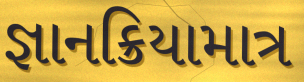
જ્ઞાનક્રિયામાત્ર